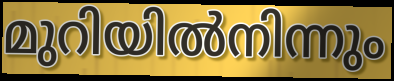
മുറിയിൽനിന്നും